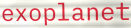
exoplanet